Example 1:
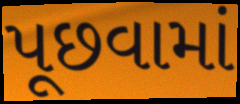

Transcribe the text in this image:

પૂછવામાં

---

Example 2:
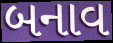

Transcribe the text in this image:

બનાવ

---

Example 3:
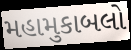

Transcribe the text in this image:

મહામુકાબલો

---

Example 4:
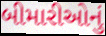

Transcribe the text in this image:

બીમારીઓનું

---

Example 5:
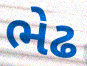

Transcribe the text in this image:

ભેઢ